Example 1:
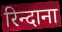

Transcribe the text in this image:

रिन्दाना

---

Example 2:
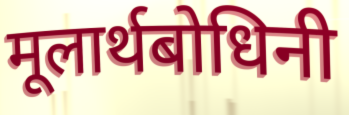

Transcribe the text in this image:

मूलार्थबोधिनी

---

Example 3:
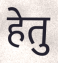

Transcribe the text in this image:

हेतु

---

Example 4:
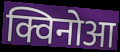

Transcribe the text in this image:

क्विनोआ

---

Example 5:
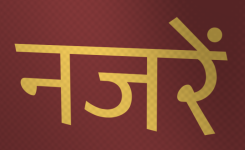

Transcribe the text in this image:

नजरें